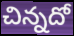
చిన్నదో